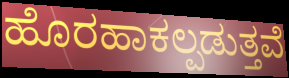
ಹೊರಹಾಕಲ್ಪಡುತ್ತವೆ